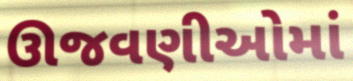
ઊજવણીઓમાં